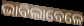
ଭାବିଲାବେଳେ